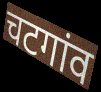
चटगांव